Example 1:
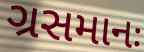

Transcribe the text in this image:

ગ્રસમાનઃ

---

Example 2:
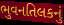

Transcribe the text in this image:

ભુવનતિલકનું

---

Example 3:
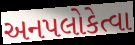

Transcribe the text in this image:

અનપલોકેત્વા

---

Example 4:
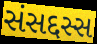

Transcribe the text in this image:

સંસદ્દસ્સ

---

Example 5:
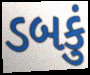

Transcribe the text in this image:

ડબકું